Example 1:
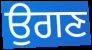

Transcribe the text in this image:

ਉਗਣ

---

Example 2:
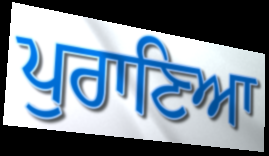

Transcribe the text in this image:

ਪੁਰਾਣਿਆ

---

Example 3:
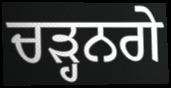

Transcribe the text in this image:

ਚੜ੍ਹਨਗੇ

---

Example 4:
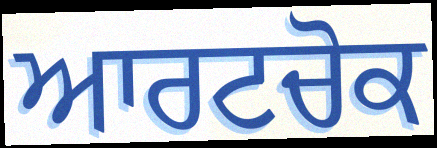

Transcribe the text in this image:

ਆਰਟਚੋਕ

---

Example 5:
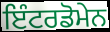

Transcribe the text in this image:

ਇੰਟਰਡੋਮੇਨ